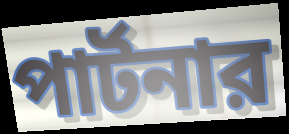
পার্টনার